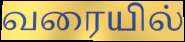
வரையில்